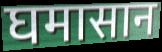
घमासान